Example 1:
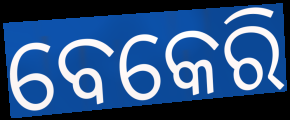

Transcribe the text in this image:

ବେକେରି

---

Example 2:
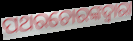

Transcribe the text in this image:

ପଥରଚୋରଙ୍କଦ୍ୱାରା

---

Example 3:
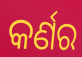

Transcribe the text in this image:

କର୍ଣର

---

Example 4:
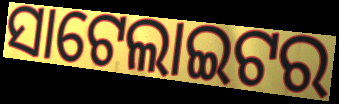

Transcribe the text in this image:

ସାଟେଲାଇଟର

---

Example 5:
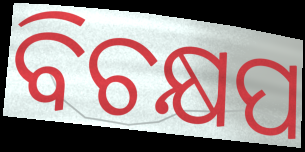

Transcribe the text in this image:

ବିଚକ୍ଷପ